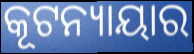
କୂଟନ୍ୟାୟାର